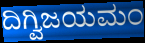
ದಿಗ್ವಿಜಯಮಂ